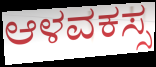
ಆಳವಕಸ್ಸ